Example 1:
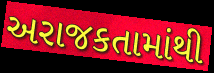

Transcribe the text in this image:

અરાજકતામાંથી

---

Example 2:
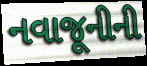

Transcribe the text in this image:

નવાજૂનીની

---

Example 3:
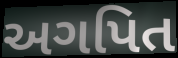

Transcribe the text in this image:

અગપિત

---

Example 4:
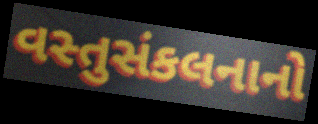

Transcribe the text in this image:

વસ્તુસંકલનાનો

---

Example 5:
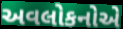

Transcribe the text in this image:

અવલોકનોએ